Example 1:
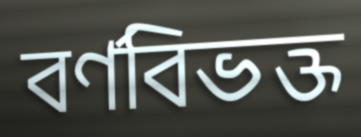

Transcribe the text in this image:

বর্ণবিভক্ত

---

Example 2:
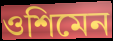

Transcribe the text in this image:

ওশিমেন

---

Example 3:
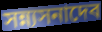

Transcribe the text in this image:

সন্ন্যসনাদেব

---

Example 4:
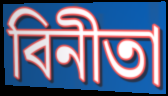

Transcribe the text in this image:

বিনীতা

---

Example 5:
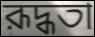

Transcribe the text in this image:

রূদ্ধতা